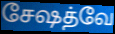
சேஷத்வே